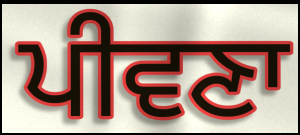
ਪੀਵਣਾ